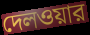
দেলওয়ার